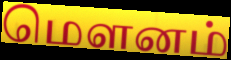
மெளனம்